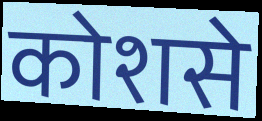
कोशसे